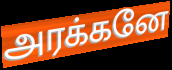
அரக்கனே